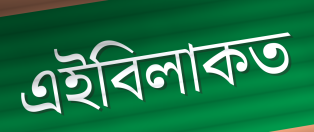
এইবিলাকত